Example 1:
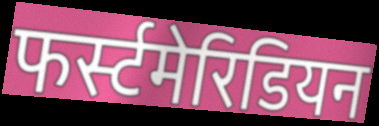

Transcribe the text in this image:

फर्स्टमेरिडियन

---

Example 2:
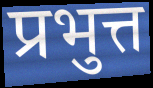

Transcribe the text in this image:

प्रभुत्त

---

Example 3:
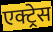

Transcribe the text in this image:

एक्ट्र्रेस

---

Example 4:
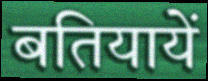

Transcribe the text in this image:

बतियायें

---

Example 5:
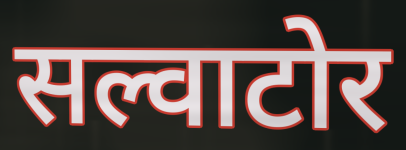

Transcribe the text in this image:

सल्वाटोर